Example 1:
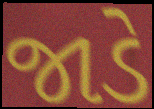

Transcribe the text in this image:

જાડે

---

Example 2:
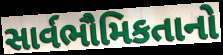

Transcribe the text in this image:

સાર્વભૌમિકતાનો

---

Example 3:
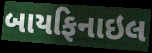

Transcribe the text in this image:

બાયફિનાઇલ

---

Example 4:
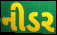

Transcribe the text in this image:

નીડર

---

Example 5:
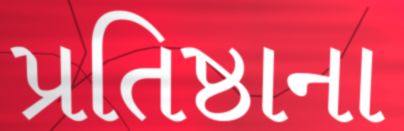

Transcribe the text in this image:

પ્રતિષ્ઠાના